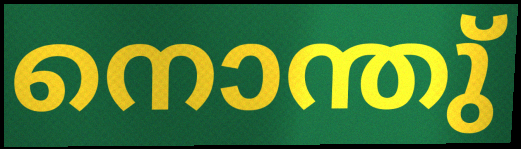
നൊന്തു്